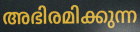
അഭിരമിക്കുന്ന